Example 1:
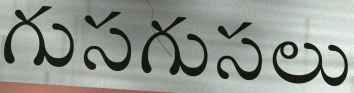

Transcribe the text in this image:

గుసగుసలు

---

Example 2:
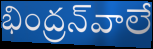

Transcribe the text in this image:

భింద్రన్‌వాలే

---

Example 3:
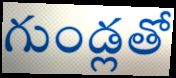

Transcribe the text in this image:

గుండ్లతో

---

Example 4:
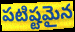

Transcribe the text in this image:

పటిష్టమైన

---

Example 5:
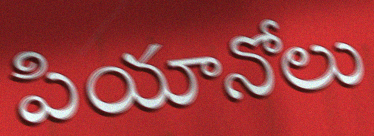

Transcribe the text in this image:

పియానోలు